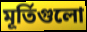
মূর্তিগুলো